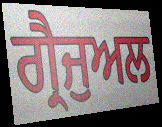
ਗ੍ਰੈਜੁਅਲ